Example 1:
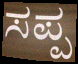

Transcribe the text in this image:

ಸಪ್ಪ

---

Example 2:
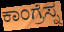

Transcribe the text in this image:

ಕಾಂಗ್ರೆಸ್ನ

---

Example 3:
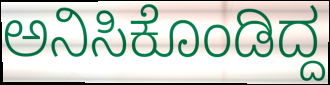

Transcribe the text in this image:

ಅನಿಸಿಕೊಂಡಿದ್ದ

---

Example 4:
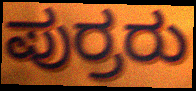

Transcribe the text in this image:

ಪುರ್ರರು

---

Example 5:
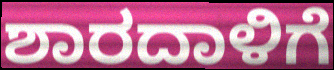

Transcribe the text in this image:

ಶಾರದಾಳಿಗೆ